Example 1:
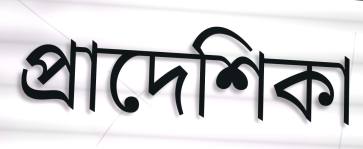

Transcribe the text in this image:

প্রাদেশিকা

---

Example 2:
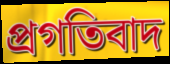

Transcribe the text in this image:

প্রগতিবাদ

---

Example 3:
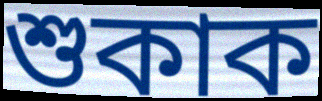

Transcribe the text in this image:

শুকাক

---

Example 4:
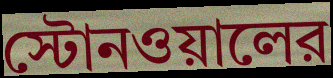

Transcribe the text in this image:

স্টোনওয়ালের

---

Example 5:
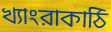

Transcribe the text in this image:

খ্যাংরাকাঠি